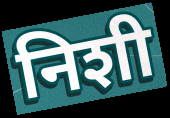
निशी